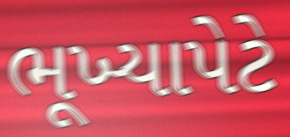
ભૂખ્યાપેટે